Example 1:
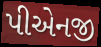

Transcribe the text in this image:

પીએનજી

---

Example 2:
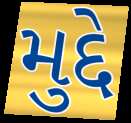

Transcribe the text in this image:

મુદ્દે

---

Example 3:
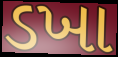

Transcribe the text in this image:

ડખા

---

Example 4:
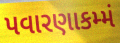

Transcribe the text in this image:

પવારણાકમ્મં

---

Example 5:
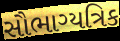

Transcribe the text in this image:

સૌભાગ્યત્રિક